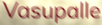
Vasupalle